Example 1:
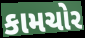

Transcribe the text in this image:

કામચોર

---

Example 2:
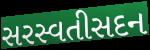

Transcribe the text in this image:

સરસ્વતીસદન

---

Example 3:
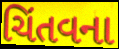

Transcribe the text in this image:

ચિંતવના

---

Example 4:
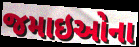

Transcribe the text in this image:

જમાઇઓના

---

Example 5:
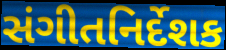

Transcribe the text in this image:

સંગીતનિર્દેશક